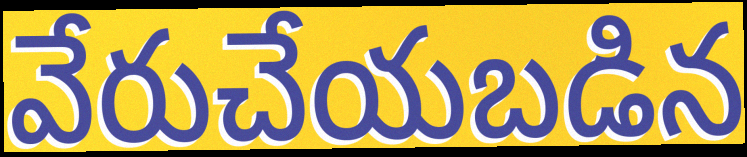
వేరుచేయబడిన